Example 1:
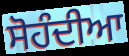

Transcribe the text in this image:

ਸੋਹੰਦੀਆ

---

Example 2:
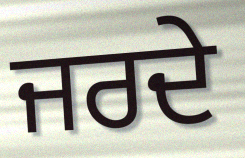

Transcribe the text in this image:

ਜਰਦੇ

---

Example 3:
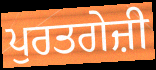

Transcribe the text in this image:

ਪੁਰਤਗੇਜ਼ੀ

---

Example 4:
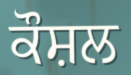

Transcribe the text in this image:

ਕੌਸ਼ਲ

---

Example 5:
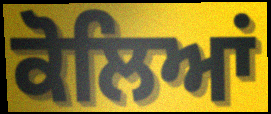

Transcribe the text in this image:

ਕੋਲਿਆਂ